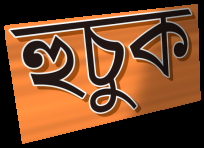
হুচুক